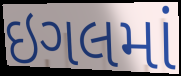
ઇગલમાં